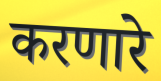
करणारे